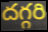
దగ్గరి